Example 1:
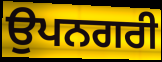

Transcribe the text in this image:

ਉਪਨਗਰੀ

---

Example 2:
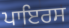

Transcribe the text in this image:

ਪਾਇਰਸ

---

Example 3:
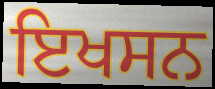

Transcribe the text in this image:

ਇਖਸਨ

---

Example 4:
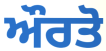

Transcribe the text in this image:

ਔਰਤੋ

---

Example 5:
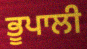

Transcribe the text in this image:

ਭੂਪਾਲੀ